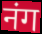
नंग